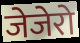
जेजेरो